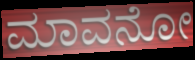
ಮಾವನೋ